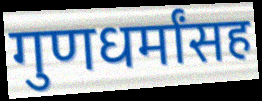
गुणधर्मांसह